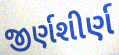
જીર્ણશીર્ણ